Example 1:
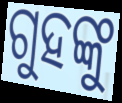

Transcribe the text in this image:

ଗୁହଙ୍କୁ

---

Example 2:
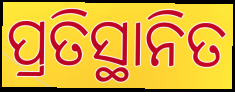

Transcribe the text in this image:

ପ୍ରତିସ୍ଥାନିତ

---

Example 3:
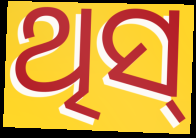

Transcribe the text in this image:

ଥିସ୍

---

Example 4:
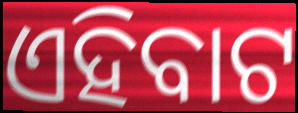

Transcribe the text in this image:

ଏହିବାଟ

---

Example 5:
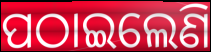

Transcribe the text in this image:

ପଠାଇଲେଣି